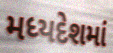
મધ્યદેશમાં